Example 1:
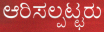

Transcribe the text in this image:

ಆರಿಸಲ್ಪಟ್ಟರು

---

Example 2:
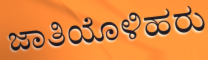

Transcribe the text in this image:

ಜಾತಿಯೊಳಿಹರು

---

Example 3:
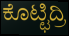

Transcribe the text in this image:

ಕೊಟ್ಟಿದ್ರಿ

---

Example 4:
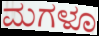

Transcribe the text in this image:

ಮಗಳೂ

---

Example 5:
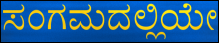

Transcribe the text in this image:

ಸಂಗಮದಲ್ಲಿಯೇ